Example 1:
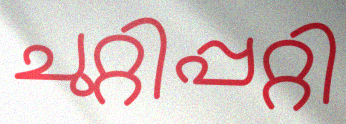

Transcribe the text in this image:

ചുറ്റിപ്പറ്റി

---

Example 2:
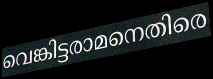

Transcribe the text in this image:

വെങ്കിട്ടരാമനെതിരെ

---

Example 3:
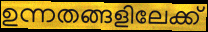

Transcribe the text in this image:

ഉന്നതങ്ങളിലേക്ക്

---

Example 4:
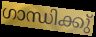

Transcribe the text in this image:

ഗാന്ധിക്കു്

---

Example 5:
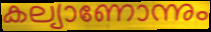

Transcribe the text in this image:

കല്യാണോന്നും